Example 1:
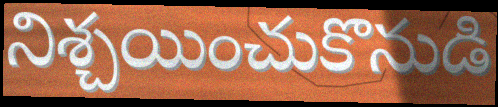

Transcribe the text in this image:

నిశ్చయించుకొనుడి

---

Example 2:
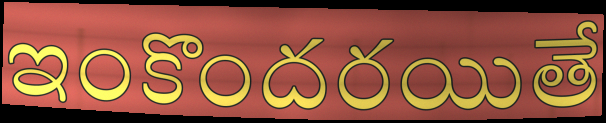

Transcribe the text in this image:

ఇంకొందరయితే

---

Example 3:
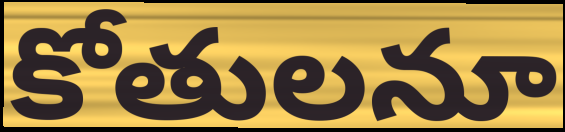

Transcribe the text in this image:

కోతులనూ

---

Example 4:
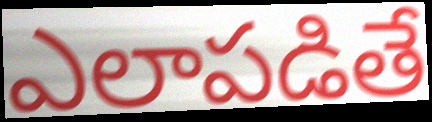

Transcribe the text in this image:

ఎలాపడితే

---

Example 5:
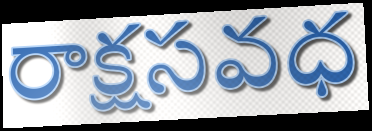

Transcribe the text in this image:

రాక్షసవధ